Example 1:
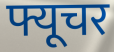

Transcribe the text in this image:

फ्यूचर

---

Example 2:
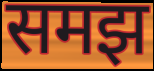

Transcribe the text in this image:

समझ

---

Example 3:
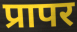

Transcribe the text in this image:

प्रापर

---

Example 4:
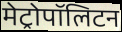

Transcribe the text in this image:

मेट्रोपॉलिटन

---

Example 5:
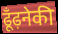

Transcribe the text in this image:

ढूँढ़नेकी